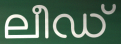
ലീഡ്